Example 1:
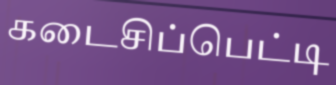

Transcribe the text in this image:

கடைசிப்பெட்டி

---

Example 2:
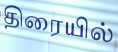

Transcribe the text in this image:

திரையில்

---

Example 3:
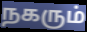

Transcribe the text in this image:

நகரும்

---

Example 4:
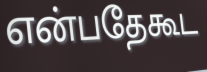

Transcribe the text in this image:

என்பதேகூட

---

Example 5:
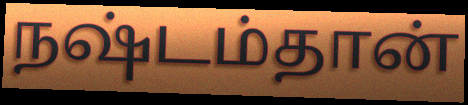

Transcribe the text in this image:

நஷ்டம்தான்